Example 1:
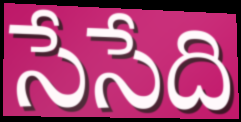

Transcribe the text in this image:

సేసేది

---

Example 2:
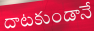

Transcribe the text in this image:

దాటకుండానే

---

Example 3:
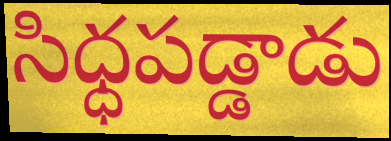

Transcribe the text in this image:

సిధ్ధపడ్డాడు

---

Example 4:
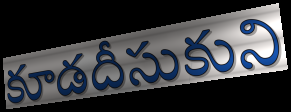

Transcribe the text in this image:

కూడదీసుకుని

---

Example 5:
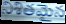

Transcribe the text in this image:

నిశితమైన